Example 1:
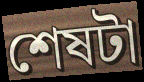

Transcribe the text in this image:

শেষটা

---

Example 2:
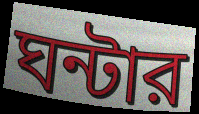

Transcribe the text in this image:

ঘন্টার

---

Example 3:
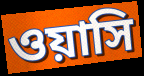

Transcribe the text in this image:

ওয়াসি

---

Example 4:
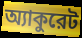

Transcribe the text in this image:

অ্যাকুরেট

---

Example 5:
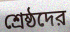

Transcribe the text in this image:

শ্রেষ্ঠদের